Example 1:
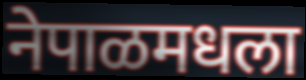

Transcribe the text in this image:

नेपाळमधला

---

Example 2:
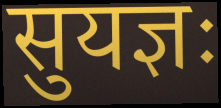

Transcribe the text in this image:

सुयज्ञः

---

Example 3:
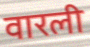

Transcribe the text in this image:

वारली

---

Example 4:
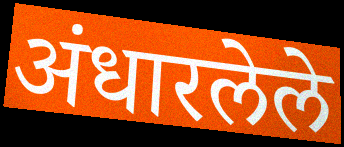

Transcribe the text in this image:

अंधारलेले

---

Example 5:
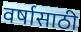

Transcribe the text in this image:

वर्षासाठी